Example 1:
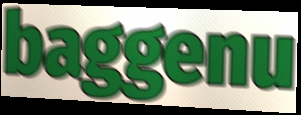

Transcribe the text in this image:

baggenu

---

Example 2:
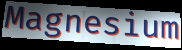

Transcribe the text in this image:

Magnesium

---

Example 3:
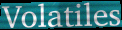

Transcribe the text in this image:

Volatiles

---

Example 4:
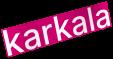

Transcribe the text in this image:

karkala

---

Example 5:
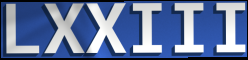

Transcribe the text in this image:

LXXIII